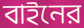
বাইনের